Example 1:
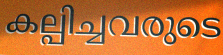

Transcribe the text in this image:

കല്പിച്ചവരുടെ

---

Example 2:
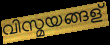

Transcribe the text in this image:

വിസ്മയങ്ങള്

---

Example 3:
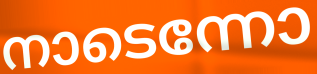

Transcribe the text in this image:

നാടെന്നോ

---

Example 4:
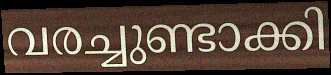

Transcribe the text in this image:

വരച്ചുണ്ടാക്കി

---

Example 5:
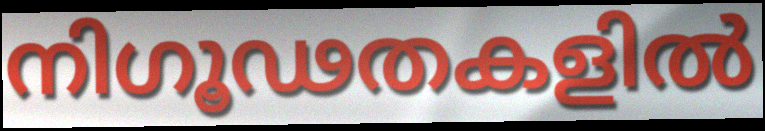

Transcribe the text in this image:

നിഗൂഢതകളിൽ